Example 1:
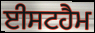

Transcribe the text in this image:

ਈਸਟਹੈਮ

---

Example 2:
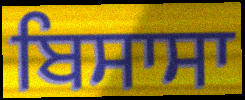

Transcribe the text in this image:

ਬਿਸਾਸਾ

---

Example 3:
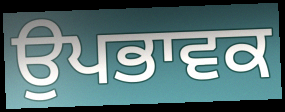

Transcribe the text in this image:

ਉਪਭਾਵਕ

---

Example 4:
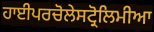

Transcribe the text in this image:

ਹਾਈਪਰਚੋਲੇਸਟ੍ਰੋਲਿਮੀਆ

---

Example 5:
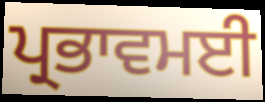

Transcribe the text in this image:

ਪ੍ਰਭਾਵਮਈ